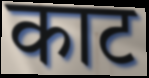
काट